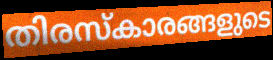
തിരസ്കാരങ്ങളുടെ